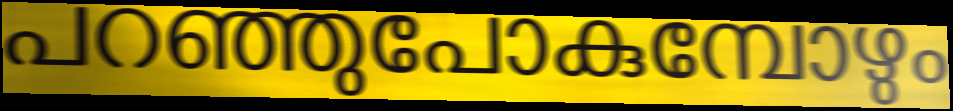
പറഞ്ഞുപോകുമ്പോഴും